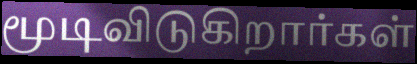
மூடிவிடுகிறார்கள்